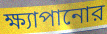
ক্ষ্যাপানোর